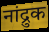
नांद्रुक